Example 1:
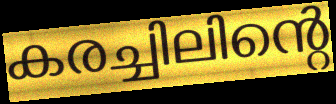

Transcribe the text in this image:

കരച്ചിലിന്റെ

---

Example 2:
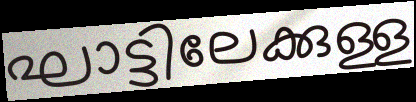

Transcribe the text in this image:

ഘാട്ടിലേക്കുള്ള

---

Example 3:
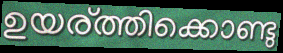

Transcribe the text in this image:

ഉയര്ത്തിക്കൊണ്ടു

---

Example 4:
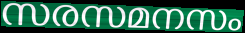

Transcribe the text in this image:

സരസമനസം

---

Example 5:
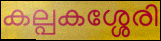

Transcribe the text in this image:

കല്പകശ്ശേരി